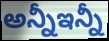
అన్నీఇన్నీ